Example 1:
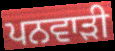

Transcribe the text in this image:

ਪਨਵਾੜੀ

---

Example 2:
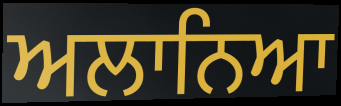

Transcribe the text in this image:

ਅਲਾਨਿਆ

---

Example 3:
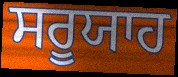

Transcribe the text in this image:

ਸਰੂਯਾਹ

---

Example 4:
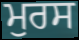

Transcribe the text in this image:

ਮੁਰਸ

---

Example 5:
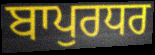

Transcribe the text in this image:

ਬਾਪੁਰਧਰ